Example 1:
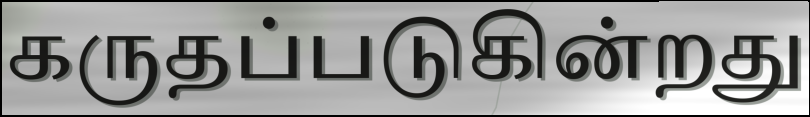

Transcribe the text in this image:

கருதப்படுகின்றது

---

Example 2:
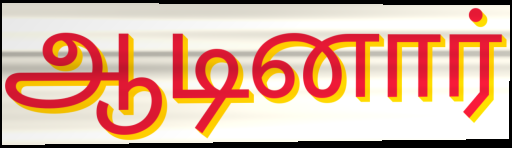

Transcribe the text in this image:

ஆடினார்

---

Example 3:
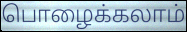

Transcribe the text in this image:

பொழைக்கலாம்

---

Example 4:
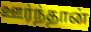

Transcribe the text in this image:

ஊர்ந்தான்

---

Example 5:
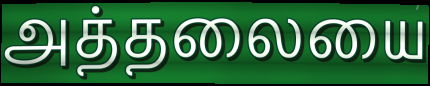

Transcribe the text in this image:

அத்தலையை